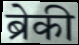
ब्रेकी